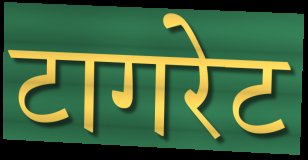
टागरेट